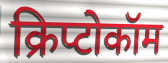
क्रिप्टोकॉम